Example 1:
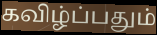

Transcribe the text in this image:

கவிழ்ப்பதும்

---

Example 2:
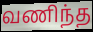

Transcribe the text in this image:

வணிந்த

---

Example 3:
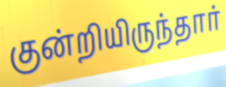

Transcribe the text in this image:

குன்றியிருந்தார்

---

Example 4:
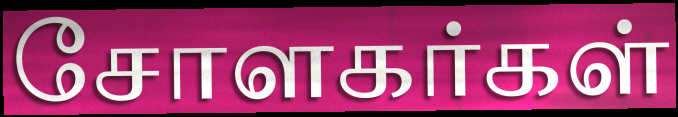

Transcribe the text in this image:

சோளகர்கள்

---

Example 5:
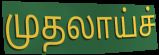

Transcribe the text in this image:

முதலாய்ச்